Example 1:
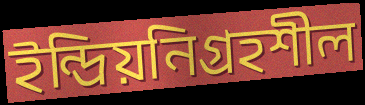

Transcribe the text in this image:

ইন্দ্রিয়নিগ্রহশীল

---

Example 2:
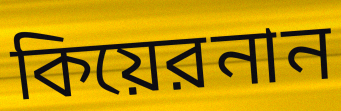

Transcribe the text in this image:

কিয়েরনান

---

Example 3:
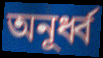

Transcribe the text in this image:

অনূর্ধ্ব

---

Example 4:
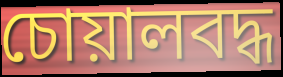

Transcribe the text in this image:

চোয়ালবদ্ধ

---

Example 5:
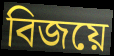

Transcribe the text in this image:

বিজয়ে